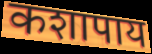
कशापाय